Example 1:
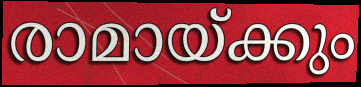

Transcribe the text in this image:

രാമായ്ക്കും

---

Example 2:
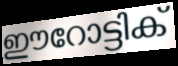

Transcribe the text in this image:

ഈറോട്ടിക്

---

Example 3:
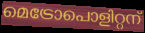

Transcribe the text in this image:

മെട്രോപൊളിറ്റന്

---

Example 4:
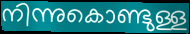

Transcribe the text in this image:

നിന്നുകൊണ്ടുള്ള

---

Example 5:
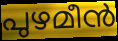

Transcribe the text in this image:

പുഴമീൻ